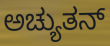
ಅಚ್ಯುತನ್